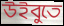
উইবুতে